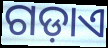
ଗଡ଼ାଏ